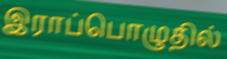
இராப்பொழுதில்